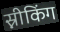
स्नीकिंग